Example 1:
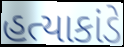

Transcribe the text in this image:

હત્યાકાંડે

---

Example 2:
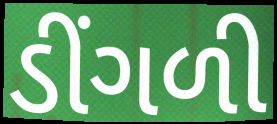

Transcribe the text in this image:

ડીંગળી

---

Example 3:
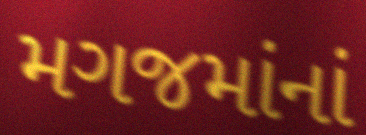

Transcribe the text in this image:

મગજમાંનાં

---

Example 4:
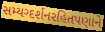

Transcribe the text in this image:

સમ્યગ્દર્શનરહિતપણાને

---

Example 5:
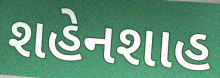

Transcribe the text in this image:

શહેનશાહ